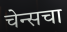
चेन्सचा